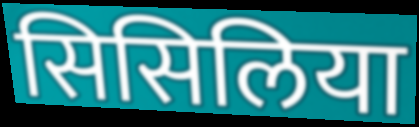
सिसिलिया